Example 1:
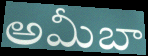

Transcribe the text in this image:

అమీబా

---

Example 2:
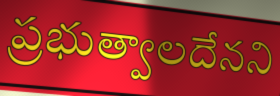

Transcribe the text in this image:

ప్రభుత్వాలదేనని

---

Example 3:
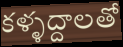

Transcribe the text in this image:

కళ్ళద్దాలతో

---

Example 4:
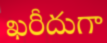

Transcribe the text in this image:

ఖరీదుగా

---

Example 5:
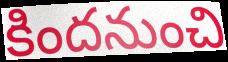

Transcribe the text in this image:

కిందనుంచి